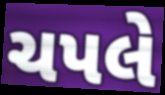
ચપલે